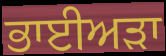
ਭਾਈਅੜਾ